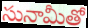
సునామీతో